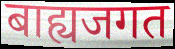
बाह्यजगत